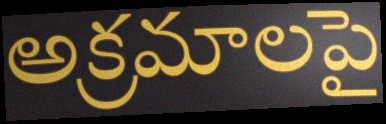
అక్రమాలపై